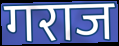
गराज